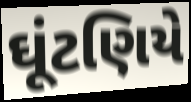
ઘૂંટણિયે